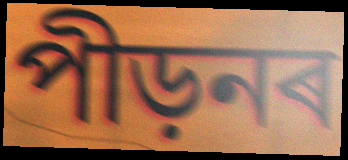
পীড়নৰ